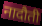
नादौती